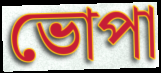
ভোপা